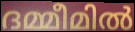
ദമ്മീമിൽ